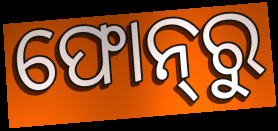
ଫୋନ୍‌ରୁ